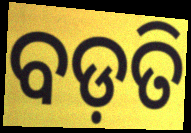
ବଡ଼ତି